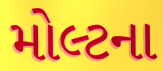
મોલ્ટના